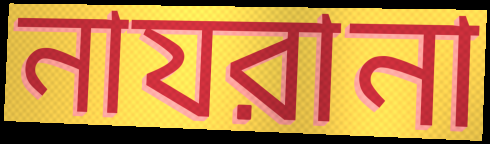
নাযরানা